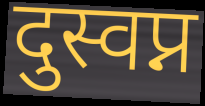
दुस्वप्न